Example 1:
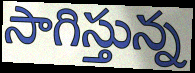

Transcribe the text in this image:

సాగిస్తున్న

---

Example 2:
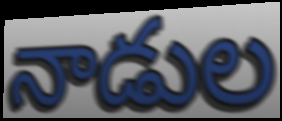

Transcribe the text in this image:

నాడుల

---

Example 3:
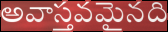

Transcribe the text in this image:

అవాస్తవమైనది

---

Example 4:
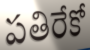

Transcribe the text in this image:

పతిరేకో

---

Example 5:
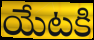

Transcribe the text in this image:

యేటకి